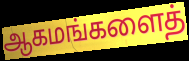
ஆகமங்களைத்